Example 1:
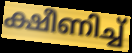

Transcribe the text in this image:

ക്ഷീണിച്ച്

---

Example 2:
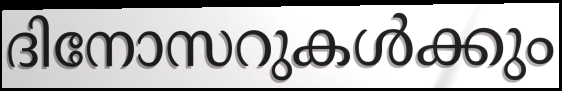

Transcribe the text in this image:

ദിനോസറുകൾക്കും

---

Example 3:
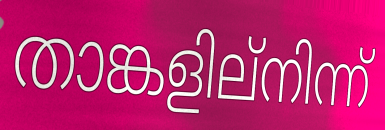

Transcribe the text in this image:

താങ്കളില്നിന്ന്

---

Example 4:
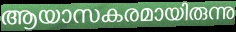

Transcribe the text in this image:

ആയാസകരമായിരുന്നു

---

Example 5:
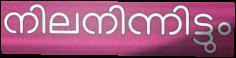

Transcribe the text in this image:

നിലനിന്നിട്ടും